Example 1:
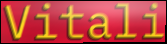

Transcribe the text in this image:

Vitali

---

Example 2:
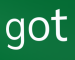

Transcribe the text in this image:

got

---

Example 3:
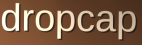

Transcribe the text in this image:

dropcap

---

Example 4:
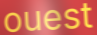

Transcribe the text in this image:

ouest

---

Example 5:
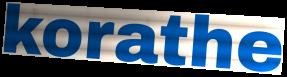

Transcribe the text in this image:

korathe